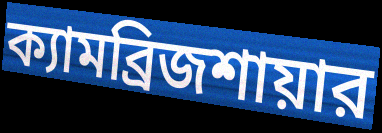
ক্যামব্রিজশায়ার